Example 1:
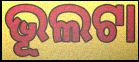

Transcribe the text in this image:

ଭୂଲଟା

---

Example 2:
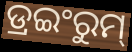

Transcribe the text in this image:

ଡ୍ରଇଂରୁମ୍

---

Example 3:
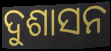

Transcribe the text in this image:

ଦୁଶାସନ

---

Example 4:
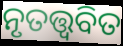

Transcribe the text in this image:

ନୃତତ୍ତ୍ୱବିତ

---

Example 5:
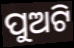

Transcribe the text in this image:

ପୁଅଟି